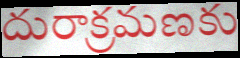
దురాక్రమణకు